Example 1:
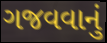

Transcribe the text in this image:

ગજવવાનું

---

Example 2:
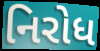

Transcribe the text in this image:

નિરોધ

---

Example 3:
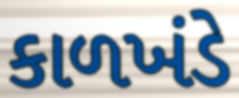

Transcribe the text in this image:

કાળખંડે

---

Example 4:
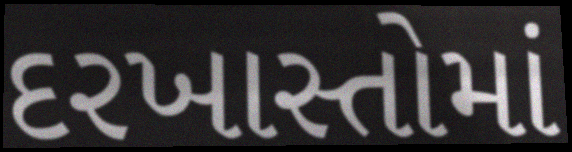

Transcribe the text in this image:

દરખાસ્તોમાં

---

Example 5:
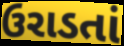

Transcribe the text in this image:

ઉરાડતાં